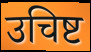
उचिष्ट